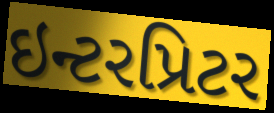
ઇન્ટરપ્રિટર